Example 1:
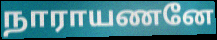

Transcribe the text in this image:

நாராயணனே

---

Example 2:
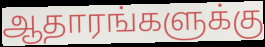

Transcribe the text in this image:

ஆதாரங்களுக்கு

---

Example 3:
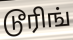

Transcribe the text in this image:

டூரிங்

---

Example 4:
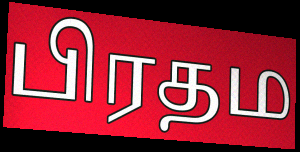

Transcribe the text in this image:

பிரதம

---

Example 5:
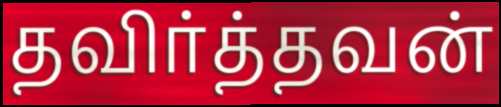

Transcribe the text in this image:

தவிர்த்தவன்